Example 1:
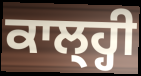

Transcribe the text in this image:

ਕਾਲ੍ਹ੍ਹੀ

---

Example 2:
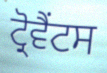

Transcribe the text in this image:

ਟ੍ਰੋਵੈਂਟਸ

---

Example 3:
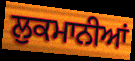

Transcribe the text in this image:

ਲੁਕਮਾਨੀਆਂ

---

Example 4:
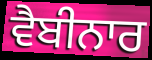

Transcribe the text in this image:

ਵੈਬੀਨਾਰ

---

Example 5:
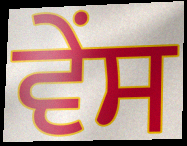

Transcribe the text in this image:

ਵੇਂਸ